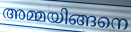
അമ്മയിങ്ങനെ